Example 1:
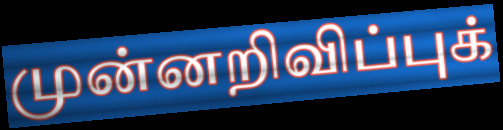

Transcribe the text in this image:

முன்னறிவிப்புக்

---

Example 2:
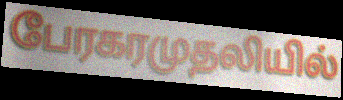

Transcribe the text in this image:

பேரகரமுதலியில்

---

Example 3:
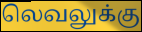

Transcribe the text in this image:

லெவலுக்கு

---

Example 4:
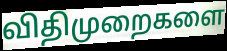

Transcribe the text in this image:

விதிமுறைகளை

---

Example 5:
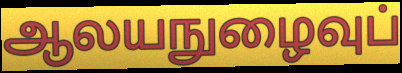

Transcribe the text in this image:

ஆலயநுழைவுப்